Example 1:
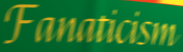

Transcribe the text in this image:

Fanaticism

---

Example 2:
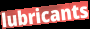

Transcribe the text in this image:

lubricants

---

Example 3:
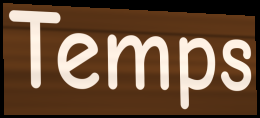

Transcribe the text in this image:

Temps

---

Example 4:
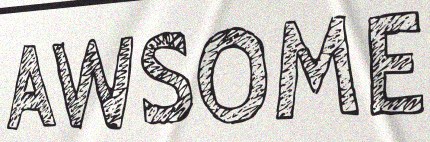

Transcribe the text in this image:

AWSOME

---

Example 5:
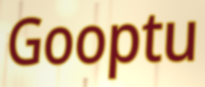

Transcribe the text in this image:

Gooptu